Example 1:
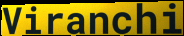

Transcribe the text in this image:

Viranchi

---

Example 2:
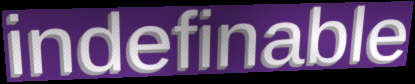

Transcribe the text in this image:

indefinable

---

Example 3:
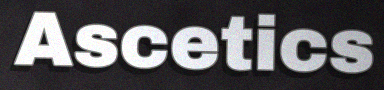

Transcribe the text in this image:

Ascetics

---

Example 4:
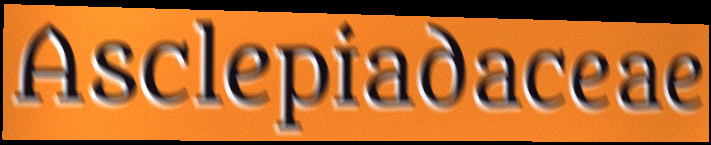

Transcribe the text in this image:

Asclepiadaceae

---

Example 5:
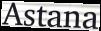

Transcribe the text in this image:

Astana